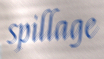
spillage